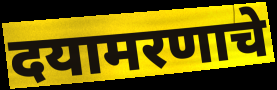
दयामरणाचे